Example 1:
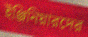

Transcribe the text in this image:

ইঞ্জিনিয়ারদের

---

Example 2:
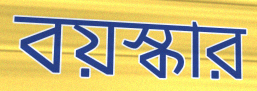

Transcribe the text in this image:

বয়স্কার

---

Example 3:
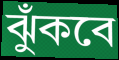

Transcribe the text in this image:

ঝুঁকবে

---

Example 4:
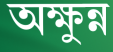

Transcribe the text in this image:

অক্ষুন্ন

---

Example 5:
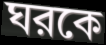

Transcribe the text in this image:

ঘরকে